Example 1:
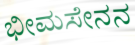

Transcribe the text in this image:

ಭೀಮಸೇನನ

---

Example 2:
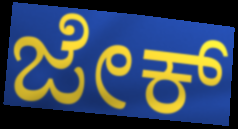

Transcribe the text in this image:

ಜೇಕ್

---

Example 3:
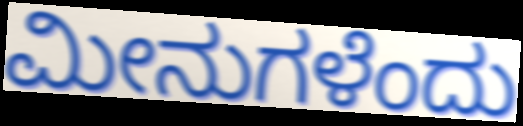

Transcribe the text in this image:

ಮೀನುಗಳೆಂದು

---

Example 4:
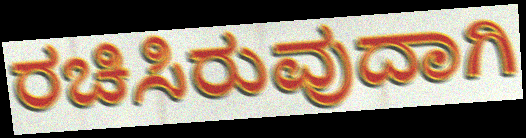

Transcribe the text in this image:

ರಚಿಸಿರುವುದಾಗಿ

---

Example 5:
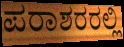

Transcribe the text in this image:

ಪರಾಶರರಲ್ಲಿ